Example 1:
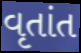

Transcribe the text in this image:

વૃતાંત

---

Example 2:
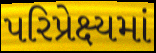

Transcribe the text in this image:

પરિપ્રેક્ષ્યમાં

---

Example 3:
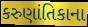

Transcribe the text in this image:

કરુણાંતિકાના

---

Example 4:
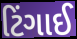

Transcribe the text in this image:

ટિંગાઈ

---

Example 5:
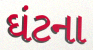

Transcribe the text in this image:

ઘંટના